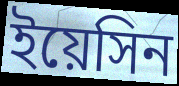
ইয়েসিন